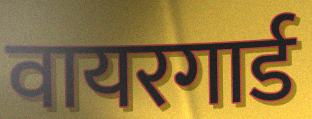
वायरगार्ड